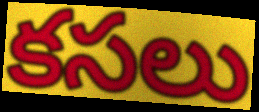
కసలు